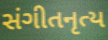
સંગીતનૃત્ય